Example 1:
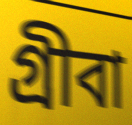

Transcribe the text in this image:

গ্রীবা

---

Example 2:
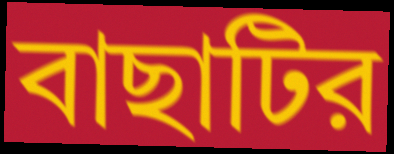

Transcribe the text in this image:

বাছাটির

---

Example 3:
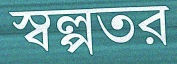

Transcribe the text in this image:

স্বল্পতর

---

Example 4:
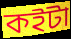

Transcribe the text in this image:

কইটা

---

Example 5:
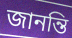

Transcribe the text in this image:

জানন্তি